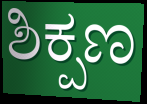
ಶಿಕ್ಪಣ